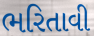
ભરિતાવી